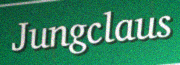
Jungclaus